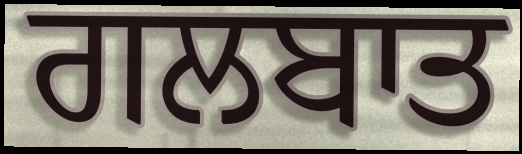
ਗਲਬਾਤ